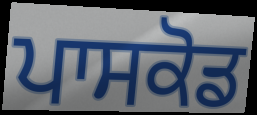
ਪਾਸਕੋਡ